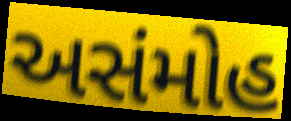
અસંમોહ